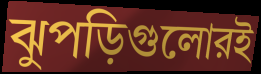
ঝুপড়িগুলোরই